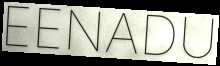
EENADU